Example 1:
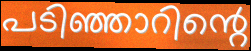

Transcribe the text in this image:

പടിഞ്ഞാറിന്റെ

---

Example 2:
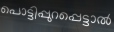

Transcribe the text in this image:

പൊട്ടിപ്പുറപ്പെട്ടാൽ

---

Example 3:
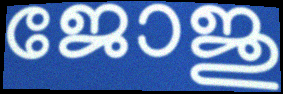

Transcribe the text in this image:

ജോജു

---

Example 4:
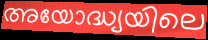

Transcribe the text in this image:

അയോദ്ധ്യയിലെ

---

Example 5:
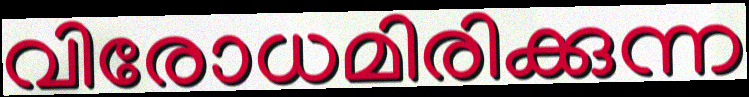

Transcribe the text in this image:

വിരോധമിരിക്കുന്ന